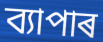
ব্যাপাৰ